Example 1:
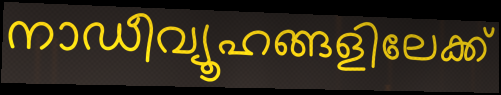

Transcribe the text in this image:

നാഡീവ്യൂഹങ്ങളിലേക്ക്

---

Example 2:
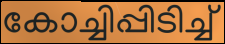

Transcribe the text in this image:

കോച്ചിപ്പിടിച്ച്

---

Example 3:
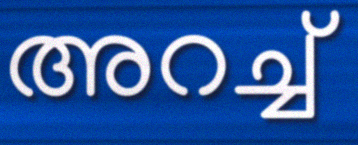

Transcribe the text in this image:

അറച്ച്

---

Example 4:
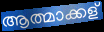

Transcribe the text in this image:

ആത്മാക്കള്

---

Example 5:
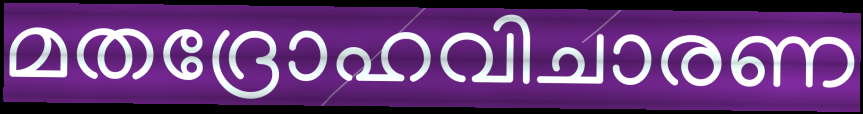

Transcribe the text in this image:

മതദ്രോഹവിചാരണ